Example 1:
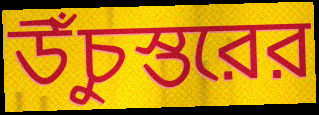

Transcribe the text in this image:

উঁচুস্তরের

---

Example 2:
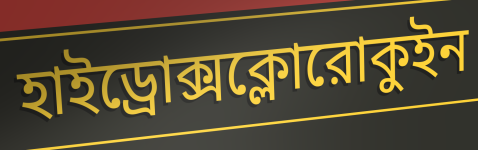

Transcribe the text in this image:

হাইড্রোক্সক্লোরোকুইন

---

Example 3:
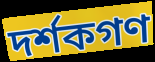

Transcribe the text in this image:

দর্শকগণ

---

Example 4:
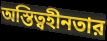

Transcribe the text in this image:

অস্তিত্বহীনতার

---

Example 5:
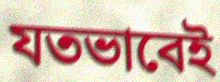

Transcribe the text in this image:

যতভাবেই